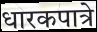
धारकपात्रे